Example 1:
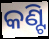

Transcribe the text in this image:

କଣ୍ଟି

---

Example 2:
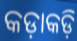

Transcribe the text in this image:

କଡ଼ାକଡ଼ି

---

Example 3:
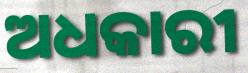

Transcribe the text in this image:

ଅଧକାରୀ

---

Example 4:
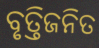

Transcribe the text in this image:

ବୃତ୍ତିଜନିତ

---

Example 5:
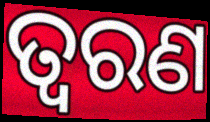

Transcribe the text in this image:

ତ୍ୱରଣ